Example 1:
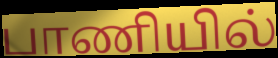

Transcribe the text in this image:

பாணியில்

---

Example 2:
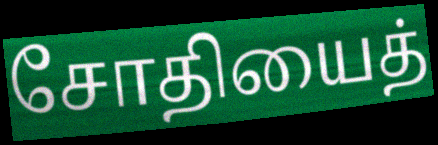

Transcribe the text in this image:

சோதியைத்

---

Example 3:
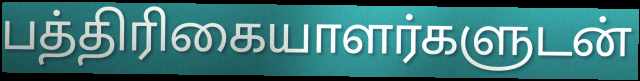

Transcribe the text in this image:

பத்திரிகையாளர்களுடன்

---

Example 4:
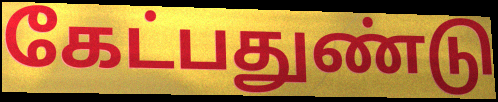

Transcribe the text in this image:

கேட்பதுண்டு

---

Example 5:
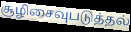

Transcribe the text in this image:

சூழிசைவுபடுத்தல்